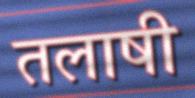
तलाषी